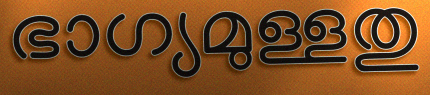
ഭാഗ്യമുള്ളതു